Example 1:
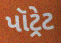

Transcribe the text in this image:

પૉટ્રેટ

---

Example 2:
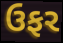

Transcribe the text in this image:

ઉફર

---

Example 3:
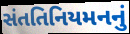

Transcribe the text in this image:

સંતતિનિયમનનું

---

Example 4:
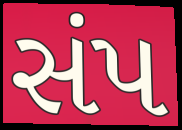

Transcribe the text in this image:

સંપ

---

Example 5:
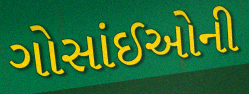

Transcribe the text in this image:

ગોસાંઈઓની